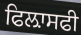
ਫਿਲ਼ਾਸਫੀ